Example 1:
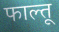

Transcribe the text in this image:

फाल्तू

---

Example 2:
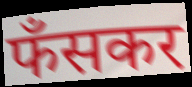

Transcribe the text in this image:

फँसकर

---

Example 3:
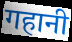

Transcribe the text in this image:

गहानी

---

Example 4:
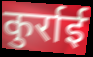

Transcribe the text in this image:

कुर्राई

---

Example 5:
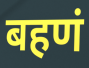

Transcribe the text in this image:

बहणं